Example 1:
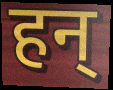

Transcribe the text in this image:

हन्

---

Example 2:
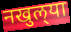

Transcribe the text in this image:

नखुल्या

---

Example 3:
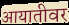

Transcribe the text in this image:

आयातीवर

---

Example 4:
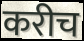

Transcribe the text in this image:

करीच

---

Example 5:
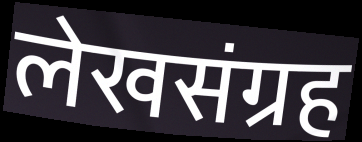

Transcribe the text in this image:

लेखसंग्रह